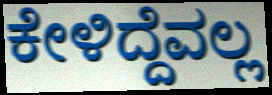
ಕೇಳಿದ್ದೆವಲ್ಲ